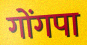
गोंगपा